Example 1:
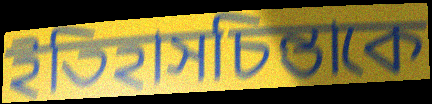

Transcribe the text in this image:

ইতিহাসচিন্তাকে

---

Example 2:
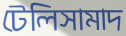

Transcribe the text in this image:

টেলিসামাদ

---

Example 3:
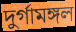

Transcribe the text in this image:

দুর্গামঙ্গল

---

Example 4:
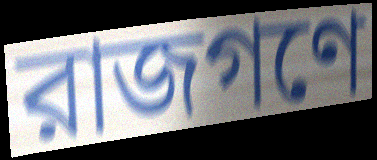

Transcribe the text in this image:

রাজগণে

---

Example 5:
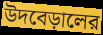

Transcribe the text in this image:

উদবেড়ালের